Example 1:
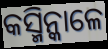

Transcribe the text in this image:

କସ୍ମିନ୍କାଳେ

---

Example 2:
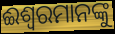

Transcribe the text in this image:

ଈଶ୍ୱରମାନଙ୍କୁ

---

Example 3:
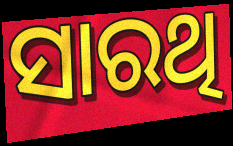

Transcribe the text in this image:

ସାରଥି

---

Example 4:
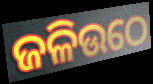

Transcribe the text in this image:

ଜଳିଉଠେ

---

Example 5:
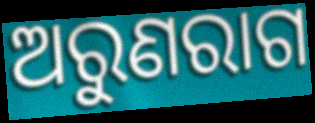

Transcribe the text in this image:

ଅରୁଣରାଗ